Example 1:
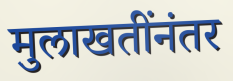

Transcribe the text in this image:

मुलाखतींनंतर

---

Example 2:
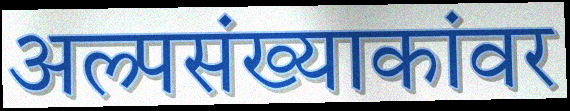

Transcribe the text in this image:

अल्पसंख्याकांवर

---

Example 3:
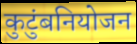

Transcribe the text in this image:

कुटुंबनियोजन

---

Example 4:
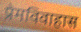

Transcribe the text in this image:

प्रेमविवाहास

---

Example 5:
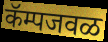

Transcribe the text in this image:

कॅम्पजवळ